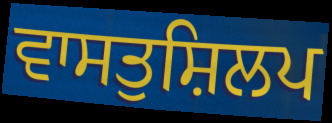
ਵਾਸਤੁਸ਼ਿਲਪ